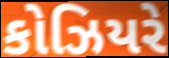
કોઝિયરે